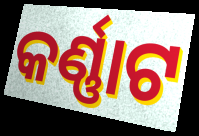
କର୍ଣ୍ଣାଟ